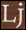
Lj